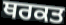
ਥਰਕਤ